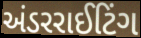
અંડરરાઈટિંગ